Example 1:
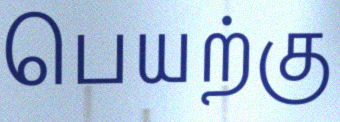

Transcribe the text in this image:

பெயற்கு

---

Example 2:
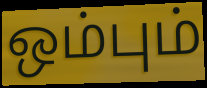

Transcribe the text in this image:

ஒம்பும்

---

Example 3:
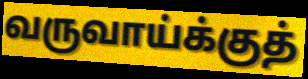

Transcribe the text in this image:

வருவாய்க்குத்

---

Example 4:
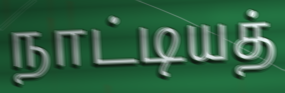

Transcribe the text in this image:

நாட்டியத்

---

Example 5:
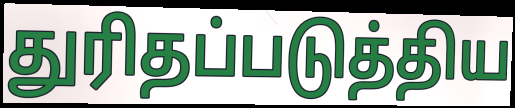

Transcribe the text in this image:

துரிதப்படுத்திய